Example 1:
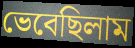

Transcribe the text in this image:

ভেবেছিলাম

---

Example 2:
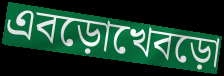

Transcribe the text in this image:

এবড়োখেবড়ো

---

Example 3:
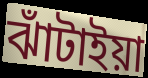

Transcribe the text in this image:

ঝাঁটাইয়া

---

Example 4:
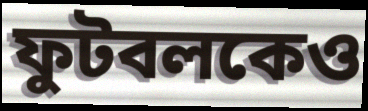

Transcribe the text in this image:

ফুটবলকেও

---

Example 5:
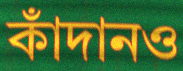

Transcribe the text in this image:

কাঁদানও